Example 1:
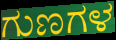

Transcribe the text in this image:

ಗುಣಗಳ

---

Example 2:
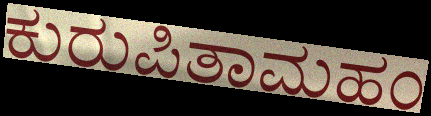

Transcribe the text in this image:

ಕುರುಪಿತಾಮಹಂ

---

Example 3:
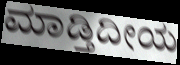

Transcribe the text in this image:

ಮಾಡ್ತಿದೀಯ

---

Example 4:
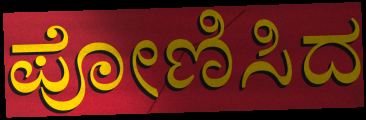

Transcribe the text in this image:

ಪೋಣಿಸಿದ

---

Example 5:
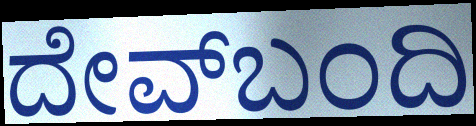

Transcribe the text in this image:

ದೇವ್‌ಬಂದಿ